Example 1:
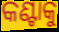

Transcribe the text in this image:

କଣ୍ଟାକୁ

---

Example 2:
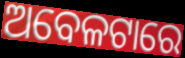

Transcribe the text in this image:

ଅବେଳଟାରେ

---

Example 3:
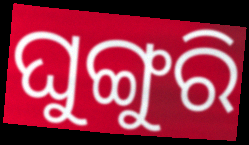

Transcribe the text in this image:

ଘୁଙ୍ଗୁରି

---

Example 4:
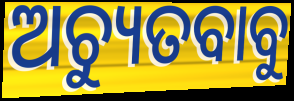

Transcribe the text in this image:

ଅଚ୍ୟୁତବାବୁ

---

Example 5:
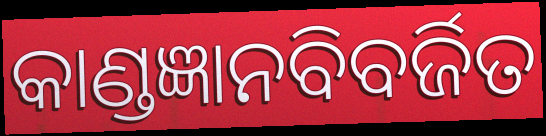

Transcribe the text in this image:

କାଣ୍ଡଜ୍ଞାନବିବର୍ଜିତ